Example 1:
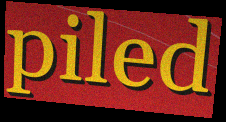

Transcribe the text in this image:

piled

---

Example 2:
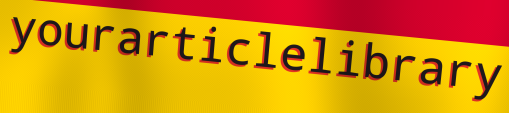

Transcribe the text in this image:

yourarticlelibrary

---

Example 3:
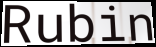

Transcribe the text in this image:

Rubin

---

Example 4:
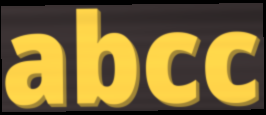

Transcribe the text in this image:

abcc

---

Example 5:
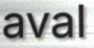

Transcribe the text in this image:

aval